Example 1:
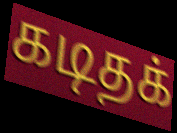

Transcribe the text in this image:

கடிதக்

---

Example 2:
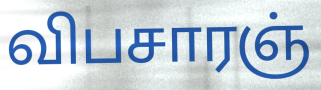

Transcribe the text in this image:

விபசாரஞ்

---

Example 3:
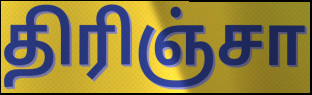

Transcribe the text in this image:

திரிஞ்சா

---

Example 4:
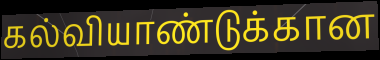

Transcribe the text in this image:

கல்வியாண்டுக்கான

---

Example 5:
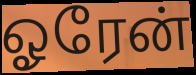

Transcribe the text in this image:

ஓரேன்